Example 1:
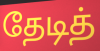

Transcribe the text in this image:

தேடித்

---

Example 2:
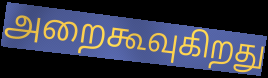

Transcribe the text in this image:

அறைகூவுகிறது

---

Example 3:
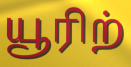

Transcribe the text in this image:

யூரிற்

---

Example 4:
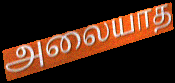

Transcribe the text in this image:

அலையாத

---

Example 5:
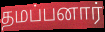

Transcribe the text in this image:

தமப்பனார்